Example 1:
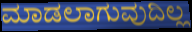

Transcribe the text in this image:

ಮಾಡಲಾಗುವುದಿಲ್ಲ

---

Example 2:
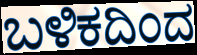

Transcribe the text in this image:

ಬಳಿಕದಿಂದ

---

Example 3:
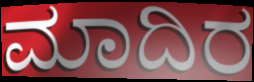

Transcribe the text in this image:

ಮಾದಿರ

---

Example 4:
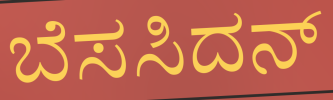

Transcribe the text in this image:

ಬೆಸಸಿದನ್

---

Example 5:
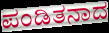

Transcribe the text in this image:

ಪಂಡಿತನಾದ